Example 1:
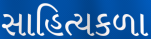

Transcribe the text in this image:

સાહિત્યકળા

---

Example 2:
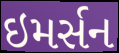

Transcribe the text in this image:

ઇમર્સન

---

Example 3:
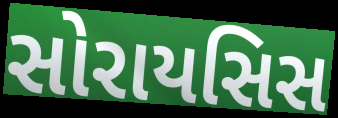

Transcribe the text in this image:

સોરાયસિસ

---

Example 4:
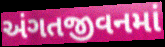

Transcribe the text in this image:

અંગતજીવનમાં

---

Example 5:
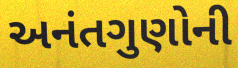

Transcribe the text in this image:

અનંતગુણોની